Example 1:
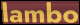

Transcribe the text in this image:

lambo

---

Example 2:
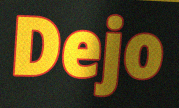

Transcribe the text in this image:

Dejo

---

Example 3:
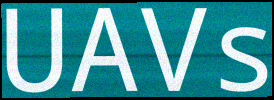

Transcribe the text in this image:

UAVs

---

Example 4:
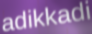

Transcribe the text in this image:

adikkadi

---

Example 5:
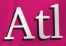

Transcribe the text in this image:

Atl